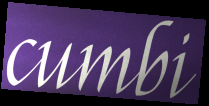
cumbi